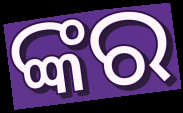
ଙ୍କର